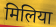
मिलिया